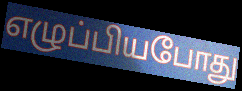
எழுப்பியபோது